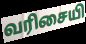
வரிசையி